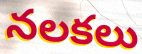
నలకలు